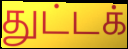
துட்டக்